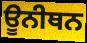
ਊਨੀਥਨ